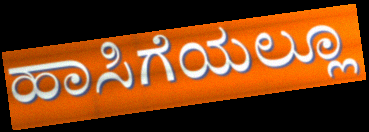
ಹಾಸಿಗೆಯಲ್ಲೂ